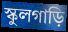
স্কুলগাড়ি